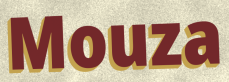
Mouza